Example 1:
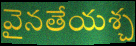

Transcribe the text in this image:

వైనతేయశ్చ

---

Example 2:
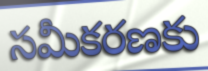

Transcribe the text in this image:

సమీకరణకు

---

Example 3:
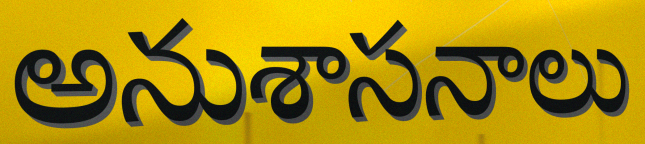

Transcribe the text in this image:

అనుశాసనాలు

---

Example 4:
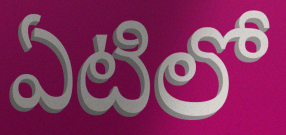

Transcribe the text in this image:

ఏటిలో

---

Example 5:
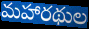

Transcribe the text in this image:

మహారథుల